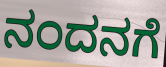
ನಂದನಗೆ